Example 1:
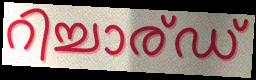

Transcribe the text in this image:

റിച്ചാര്ഡ്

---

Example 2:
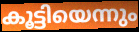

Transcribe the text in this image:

കൂട്ടിയെന്നും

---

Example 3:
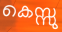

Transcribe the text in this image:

കെസ്സു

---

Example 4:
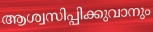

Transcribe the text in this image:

ആശ്വസിപ്പിക്കുവാനും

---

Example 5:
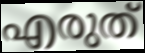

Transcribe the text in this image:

എരുത്